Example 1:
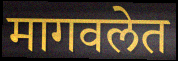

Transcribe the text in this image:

मागवलेत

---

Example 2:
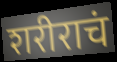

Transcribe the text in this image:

शरीराचं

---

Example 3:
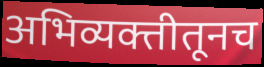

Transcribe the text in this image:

अभिव्यक्तीतूनच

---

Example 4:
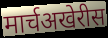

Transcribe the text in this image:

मार्चअखेरीस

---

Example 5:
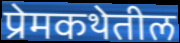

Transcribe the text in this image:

प्रेमकथेतील